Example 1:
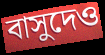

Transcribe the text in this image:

বাসুদেও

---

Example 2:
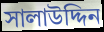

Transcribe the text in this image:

সালাউদ্দিন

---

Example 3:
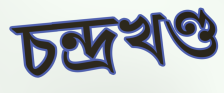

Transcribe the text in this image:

চন্দ্রখণ্ড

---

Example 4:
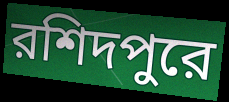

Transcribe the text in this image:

রশিদপুরে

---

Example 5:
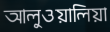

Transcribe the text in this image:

আলুওয়ালিয়া